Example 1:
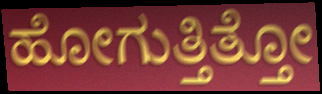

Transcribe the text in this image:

ಹೋಗುತ್ತಿತ್ತೋ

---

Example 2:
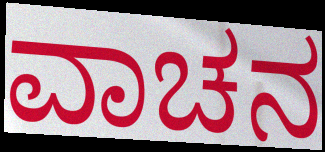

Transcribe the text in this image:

ವಾಚನ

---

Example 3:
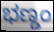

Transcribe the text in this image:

ಭಣ್ಡಂ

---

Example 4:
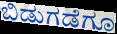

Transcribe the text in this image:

ಬಿಡುಗಡೆಗೂ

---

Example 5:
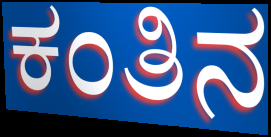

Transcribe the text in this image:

ಕಂತಿನ